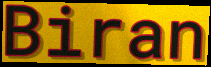
Biran